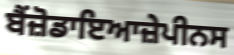
ਬੈਂਜ਼ੋਡਾਇਆਜ਼ੇਪੀਨਸ